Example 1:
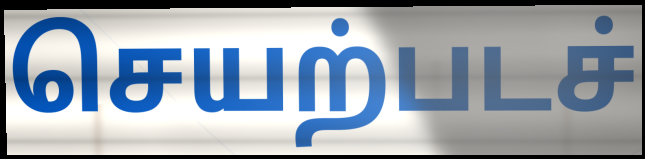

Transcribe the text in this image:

செயற்படச்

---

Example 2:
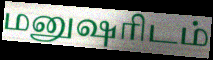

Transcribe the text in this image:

மனுஷரிடம்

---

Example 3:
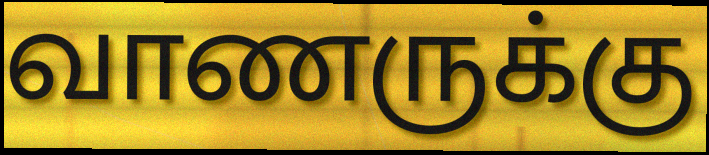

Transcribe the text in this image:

வாணருக்கு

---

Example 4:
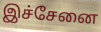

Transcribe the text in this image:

இச்சேனை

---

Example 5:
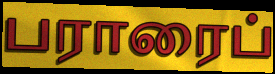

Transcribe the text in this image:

பராரைப்